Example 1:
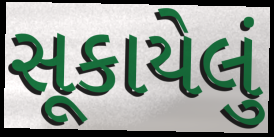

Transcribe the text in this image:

સૂકાયેલું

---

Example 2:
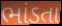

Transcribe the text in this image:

ભાંડતા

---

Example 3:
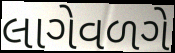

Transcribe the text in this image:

લાગેવળગે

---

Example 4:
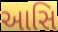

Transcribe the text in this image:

આસિ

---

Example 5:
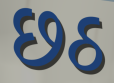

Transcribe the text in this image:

છઠ